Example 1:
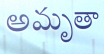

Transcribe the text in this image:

అమృతా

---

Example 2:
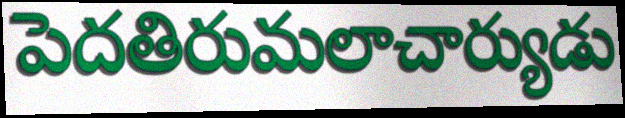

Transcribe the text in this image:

పెదతిరుమలాచార్యుడు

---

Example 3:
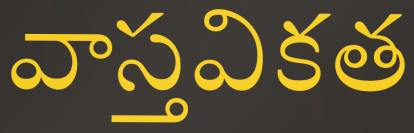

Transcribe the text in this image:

వాస్తవికత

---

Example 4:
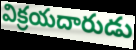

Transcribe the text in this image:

విక్రయదారుడు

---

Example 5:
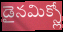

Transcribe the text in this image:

డైనమిక్స్లో